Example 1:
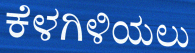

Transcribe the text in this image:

ಕೆಳಗಿಳಿಯಲು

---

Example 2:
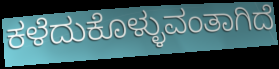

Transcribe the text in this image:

ಕಳೆದುಕೊಳ್ಳುವಂತಾಗಿದೆ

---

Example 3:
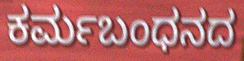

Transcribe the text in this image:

ಕರ್ಮಬಂಧನದ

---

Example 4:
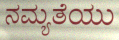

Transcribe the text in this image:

ನಮ್ಯತೆಯು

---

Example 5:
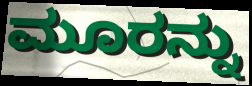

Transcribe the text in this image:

ಮೂರನ್ನು